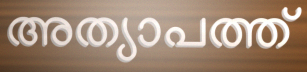
അത്യാപത്ത്